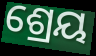
ଶ୍ରେୟ